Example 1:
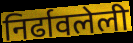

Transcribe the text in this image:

निर्ढावलेली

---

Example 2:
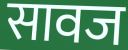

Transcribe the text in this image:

सावज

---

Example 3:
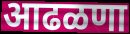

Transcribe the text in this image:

आढळणा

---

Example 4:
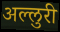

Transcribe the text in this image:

अल्लुरी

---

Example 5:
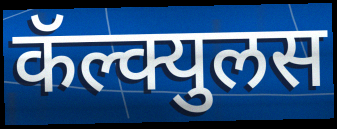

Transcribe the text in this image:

कॅल्क्युलस